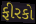
ફીરકો